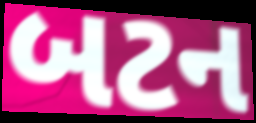
બટન